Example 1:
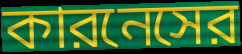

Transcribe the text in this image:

কারনেসের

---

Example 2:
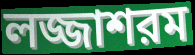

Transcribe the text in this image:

লজ্জাশরম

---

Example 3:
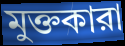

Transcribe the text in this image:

মুক্তকারা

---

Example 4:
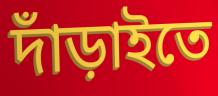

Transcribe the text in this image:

দাঁড়াইতে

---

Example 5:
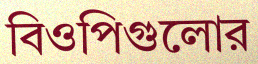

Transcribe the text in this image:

বিওপিগুলোর